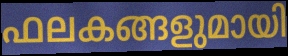
ഫലകങ്ങളുമായി